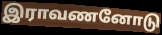
இராவணனோடு